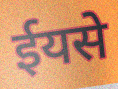
ईयसे